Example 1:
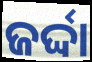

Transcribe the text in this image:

ଜର୍ଦ୍ଦା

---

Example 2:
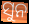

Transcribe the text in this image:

ସୁନ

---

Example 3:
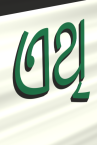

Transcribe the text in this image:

ଏଥି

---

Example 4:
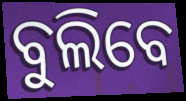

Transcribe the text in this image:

ବୁଲିବେ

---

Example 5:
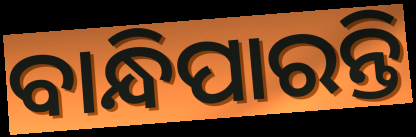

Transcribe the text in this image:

ବାନ୍ଧିପାରନ୍ତି